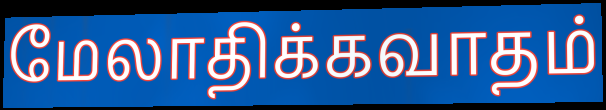
மேலாதிக்கவாதம்